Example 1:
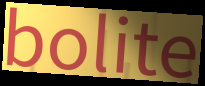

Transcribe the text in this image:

bolite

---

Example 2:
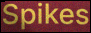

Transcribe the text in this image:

Spikes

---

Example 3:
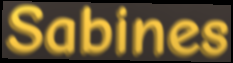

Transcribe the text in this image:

Sabines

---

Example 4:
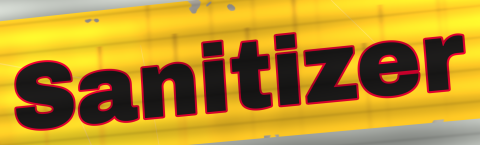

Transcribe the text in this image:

Sanitizer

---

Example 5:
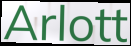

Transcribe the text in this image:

Arlott